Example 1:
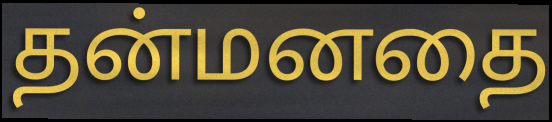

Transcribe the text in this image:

தன்மனதை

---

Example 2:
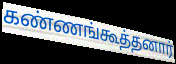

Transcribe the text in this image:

கண்ணங்கூத்தனார்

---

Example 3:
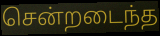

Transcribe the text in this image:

சென்றடைந்த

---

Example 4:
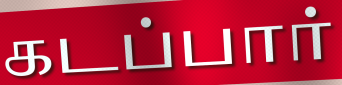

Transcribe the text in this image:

கடப்பார்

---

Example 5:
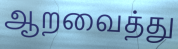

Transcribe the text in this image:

ஆறவைத்து